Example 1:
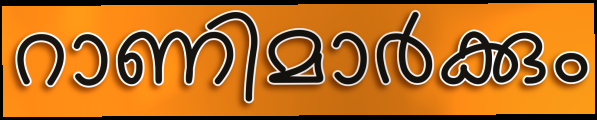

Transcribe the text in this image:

റാണിമാർക്കും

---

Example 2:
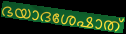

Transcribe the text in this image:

ഭയാദശേഷാത്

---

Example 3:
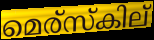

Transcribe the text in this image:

മെര്സ്കില്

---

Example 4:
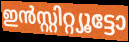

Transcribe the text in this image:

ഇൻസ്റ്റിറ്റ്യൂട്ടോ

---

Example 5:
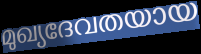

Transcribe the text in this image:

മുഖ്യദേവതയായ